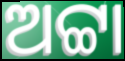
ଅଟ୍ଟା